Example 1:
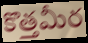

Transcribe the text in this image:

కొత్తమీర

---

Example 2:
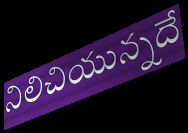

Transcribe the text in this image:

నిలిచియున్నదే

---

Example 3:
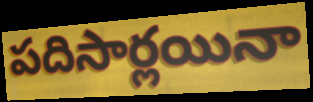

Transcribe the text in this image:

పదిసార్లయినా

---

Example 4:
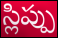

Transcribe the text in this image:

స్లిప్పు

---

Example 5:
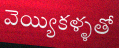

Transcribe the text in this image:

వెయ్యికళ్ళతో